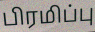
பிரமிப்பு